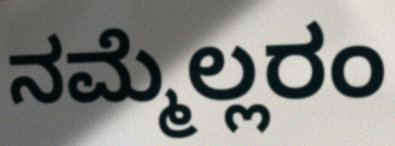
ನಮ್ಮೆಲ್ಲರಂ